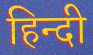
हिन्दी